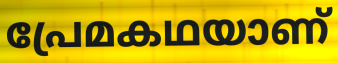
പ്രേമകഥയാണ്